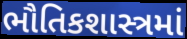
ભૌતિકશાસ્ત્રમાં